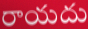
రాయదు